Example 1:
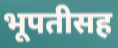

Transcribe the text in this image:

भूपतीसह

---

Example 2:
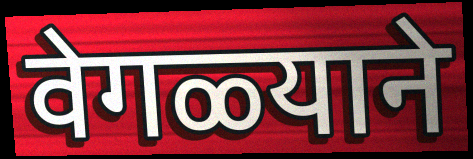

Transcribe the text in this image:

वेगळ्याने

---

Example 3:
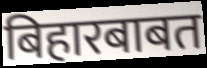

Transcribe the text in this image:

बिहारबाबत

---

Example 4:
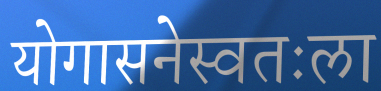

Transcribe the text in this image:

योगासनेस्वतःला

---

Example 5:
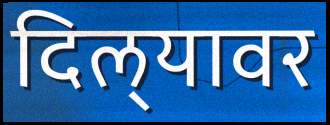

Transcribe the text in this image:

दिल्यावर